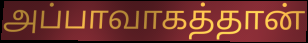
அப்பாவாகத்தான்